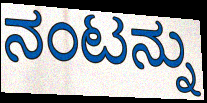
ನಂಟನ್ನು